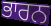
ਭਾਰਨ